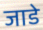
जाडे